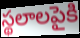
స్థలాలపైకి